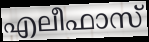
എലീഫാസ്